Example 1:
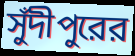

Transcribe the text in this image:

সুঁদীপুরের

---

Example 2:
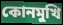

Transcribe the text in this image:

কোনমুখি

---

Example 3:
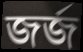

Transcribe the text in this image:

জর্জ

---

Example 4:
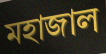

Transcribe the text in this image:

মহাজাল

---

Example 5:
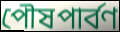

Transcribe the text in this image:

পৌষপার্বণ